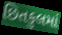
છિતકુલમાં